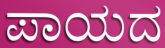
ಪಾಯದ